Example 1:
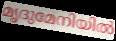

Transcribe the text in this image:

മൃദുമേനിയിൽ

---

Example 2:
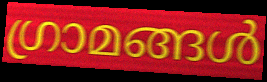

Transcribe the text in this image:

ഗ്രാമങ്ങൾ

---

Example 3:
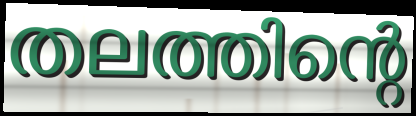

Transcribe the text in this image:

തലത്തിന്റെ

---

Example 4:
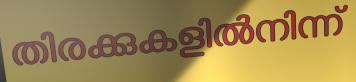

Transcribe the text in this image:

തിരക്കുകളിൽനിന്ന്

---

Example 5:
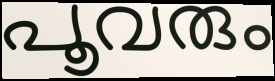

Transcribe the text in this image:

പൂവരും